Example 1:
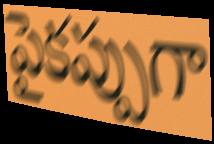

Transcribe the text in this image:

పైకప్పుగా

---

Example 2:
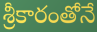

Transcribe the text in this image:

శ్రీకారంతోనే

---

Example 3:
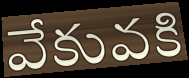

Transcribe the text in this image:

వేకువకి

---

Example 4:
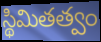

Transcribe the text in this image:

స్థిమితత్వం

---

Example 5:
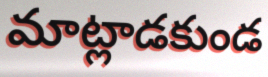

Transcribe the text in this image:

మాట్లాడకుండ